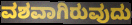
ವಶವಾಗಿರುವುದು